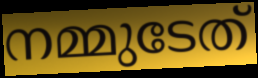
നമ്മുടേത്